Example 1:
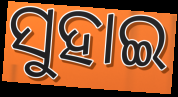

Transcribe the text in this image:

ସୁହାଇ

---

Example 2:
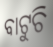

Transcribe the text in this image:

ବାଟୁଚି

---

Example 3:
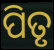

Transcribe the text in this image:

ପିତୃ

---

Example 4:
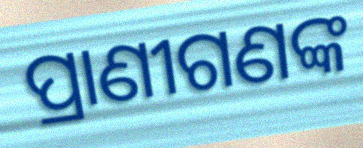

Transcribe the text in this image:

ପ୍ରାଣୀଗଣଙ୍କ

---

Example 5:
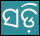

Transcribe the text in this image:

ସଡ଼ି